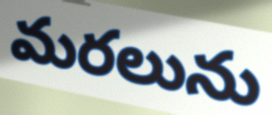
మరలును